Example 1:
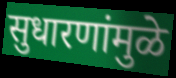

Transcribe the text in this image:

सुधारणांमुळे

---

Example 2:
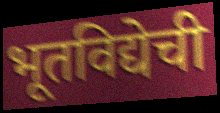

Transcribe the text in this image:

भूतविद्येची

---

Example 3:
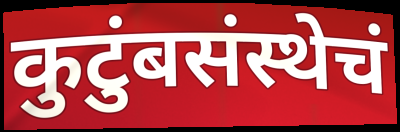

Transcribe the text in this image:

कुटुंबसंस्थेचं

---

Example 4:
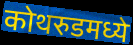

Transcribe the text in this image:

कोथरुडमध्ये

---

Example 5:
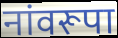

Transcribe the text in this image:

नांवरूपा